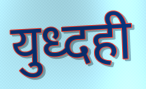
युध्दही